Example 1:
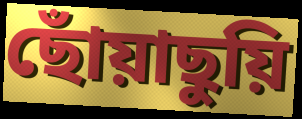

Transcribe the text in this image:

ছোঁয়াছুয়ি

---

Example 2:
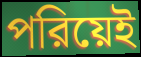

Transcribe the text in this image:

পরিয়েই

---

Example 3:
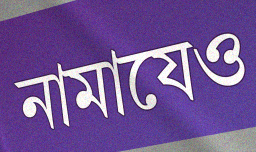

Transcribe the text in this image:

নামাযেও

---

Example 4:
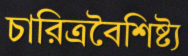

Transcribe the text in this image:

চারিত্রবৈশিষ্ট্য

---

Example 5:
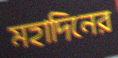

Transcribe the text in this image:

মহাদিনের